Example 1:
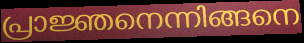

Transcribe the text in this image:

പ്രാജ്ഞനെന്നിങ്ങനെ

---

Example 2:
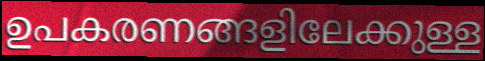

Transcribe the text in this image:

ഉപകരണങ്ങളിലേക്കുള്ള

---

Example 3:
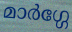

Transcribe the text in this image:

മാർഗ്ഗേ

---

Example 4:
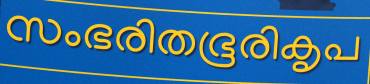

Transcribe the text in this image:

സംഭരിതഭൂരികൃപ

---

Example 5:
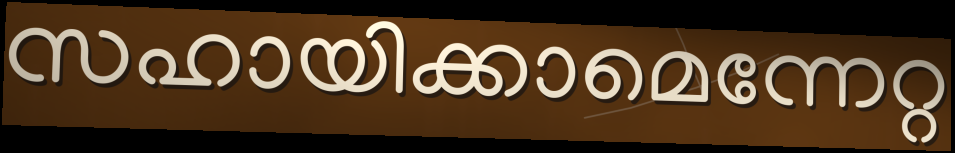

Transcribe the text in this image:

സഹായിക്കാമെന്നേറ്റ